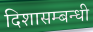
दिशासम्बन्धी